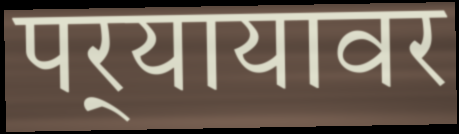
पर्यायावर